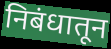
निबंधातून